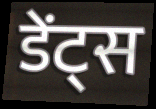
डेंट्स